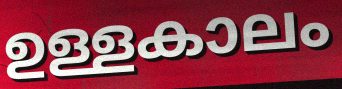
ഉള്ളകാലം